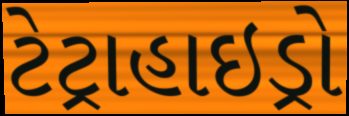
ટેટ્રાહાઇડ્રો